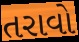
તરાવો